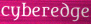
cyberedge